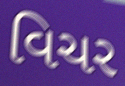
વિચર